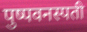
पुष्पवनस्पती